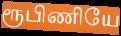
ரூபிணியே